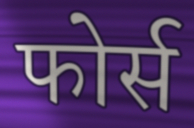
फोर्स